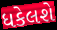
ધકેલશે